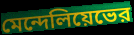
মেন্দেলিয়েভের